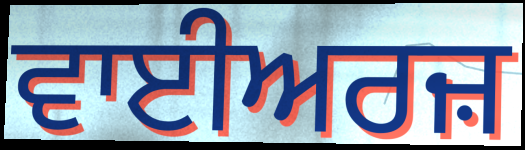
ਵਾਈਅਰਜ਼